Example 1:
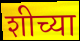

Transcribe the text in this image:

शीच्या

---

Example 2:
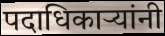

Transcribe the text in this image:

पदाधिकार्‍यांनी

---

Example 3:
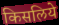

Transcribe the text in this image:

किसलिये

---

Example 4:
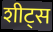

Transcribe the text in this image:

शीट्स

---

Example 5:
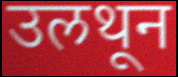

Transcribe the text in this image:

उलथून